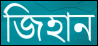
জিহান